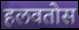
हलवतोस